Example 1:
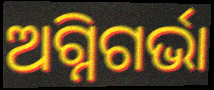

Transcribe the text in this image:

ଅଗ୍ନିଗର୍ଭା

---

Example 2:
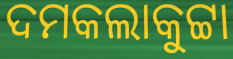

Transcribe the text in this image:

ଦମକଲାକୁଟ୍ଟା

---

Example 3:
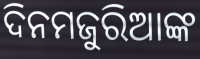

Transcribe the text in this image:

ଦିନମଜୁରିଆଙ୍କ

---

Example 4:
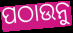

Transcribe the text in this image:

ପଠାଉନୁ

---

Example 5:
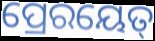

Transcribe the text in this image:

ପ୍ରେରୟେତ୍